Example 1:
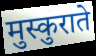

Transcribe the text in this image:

मुस्कुराते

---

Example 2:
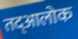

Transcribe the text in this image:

तद्आलोक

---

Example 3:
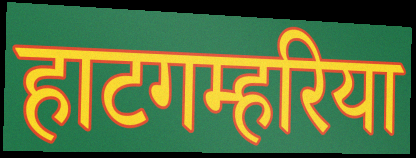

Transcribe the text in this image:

हाटगम्हरिया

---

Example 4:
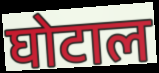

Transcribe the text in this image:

घोटाल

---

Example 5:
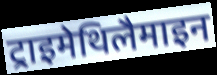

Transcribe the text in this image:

ट्राइमेथिलैमाइन